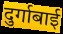
दुर्गाबाई